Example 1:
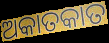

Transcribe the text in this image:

ଅକାତକାତ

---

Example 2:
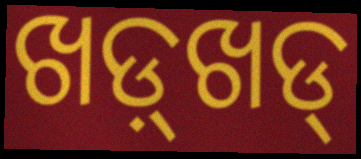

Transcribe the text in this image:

ଖଡ଼୍‌ଖଡ୍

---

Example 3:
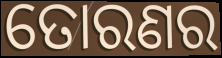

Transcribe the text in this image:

ତୋରଣର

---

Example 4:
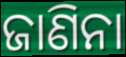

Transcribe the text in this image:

ଜାଣିନା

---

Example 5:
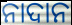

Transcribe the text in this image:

ନାଦାନ